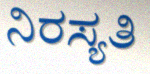
ನಿರಸ್ಯತಿ